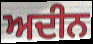
ਅਦੀਨ